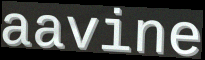
aavine